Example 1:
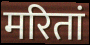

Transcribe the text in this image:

मरितां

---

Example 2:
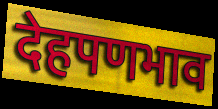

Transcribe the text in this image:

देहपणभाव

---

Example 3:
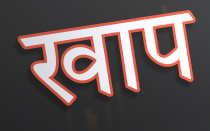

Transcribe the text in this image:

खाप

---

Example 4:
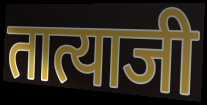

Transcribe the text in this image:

तात्याजी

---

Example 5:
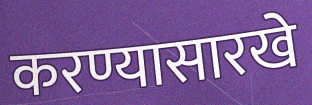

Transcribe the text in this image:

करण्यासारखे